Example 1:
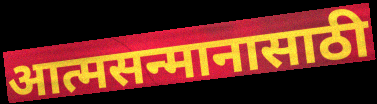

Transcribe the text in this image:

आत्मसन्मानासाठी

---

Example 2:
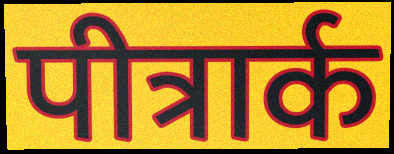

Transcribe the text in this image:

पीत्रार्क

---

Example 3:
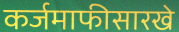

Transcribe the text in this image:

कर्जमाफीसारखे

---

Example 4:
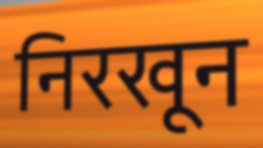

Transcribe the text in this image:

निरखून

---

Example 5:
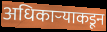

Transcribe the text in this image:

अधिकाऱ्याकडून